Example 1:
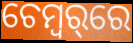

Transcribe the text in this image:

ଚେମ୍ବର୍‌ରେ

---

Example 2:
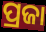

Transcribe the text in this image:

ପ୍ରଜା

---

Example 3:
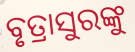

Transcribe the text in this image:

ବୃତ୍ରାସୁରଙ୍କୁ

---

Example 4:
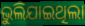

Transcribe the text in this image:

ଭୁଲିଯାଇଥିଲା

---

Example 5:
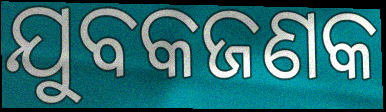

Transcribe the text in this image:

ଯୁବକଜଣକ